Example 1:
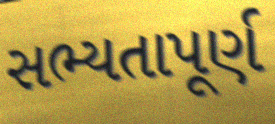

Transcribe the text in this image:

સભ્યતાપૂર્ણ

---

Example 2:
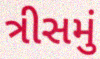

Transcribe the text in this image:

ત્રીસમું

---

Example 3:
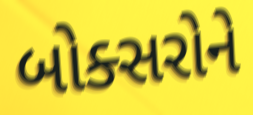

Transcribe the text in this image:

બોક્સરોને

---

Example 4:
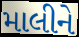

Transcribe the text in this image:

માલીને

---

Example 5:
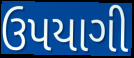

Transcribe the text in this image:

ઉપયાગી